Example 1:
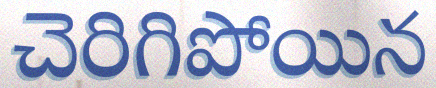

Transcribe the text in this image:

చెరిగిపోయిన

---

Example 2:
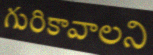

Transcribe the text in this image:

గురికావాలని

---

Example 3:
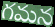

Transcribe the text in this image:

గమన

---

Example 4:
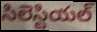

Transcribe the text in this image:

సిలెస్టియల్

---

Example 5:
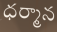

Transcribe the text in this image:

ధర్మాన